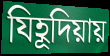
যিহূদিয়ায়